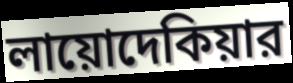
লায়োদেকিয়ার